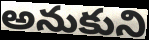
అనుకుని